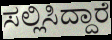
ಸಲ್ಲಿಸಿದ್ದಾರೆ